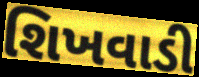
શિખવાડી